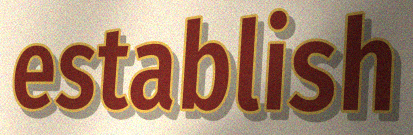
establish